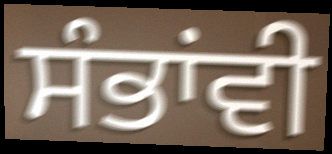
ਸੰਭਾਂਵੀ